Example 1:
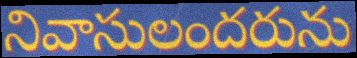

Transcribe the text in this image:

నివాసులందరును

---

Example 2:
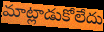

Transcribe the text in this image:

మాట్లాడుకోలేదు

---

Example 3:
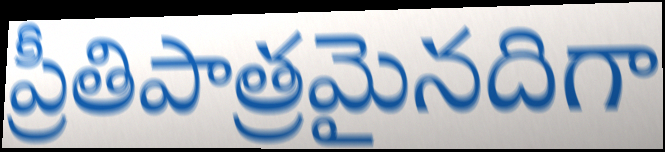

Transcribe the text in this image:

ప్రీతిపాత్రమైనదిగా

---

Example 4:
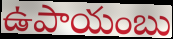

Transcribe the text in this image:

ఉపాయంబు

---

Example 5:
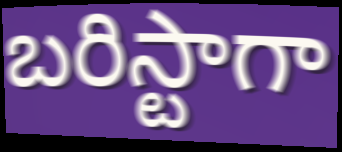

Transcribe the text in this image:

బరిస్టాగా